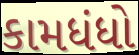
કામધંધો